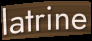
latrine